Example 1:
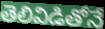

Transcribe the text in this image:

తెలివిడితోనే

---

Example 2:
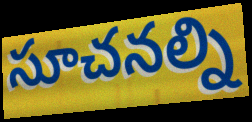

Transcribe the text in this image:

సూచనల్ని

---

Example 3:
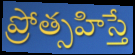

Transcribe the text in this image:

ప్రోత్సహిస్తే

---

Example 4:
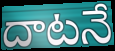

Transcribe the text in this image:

దాటనే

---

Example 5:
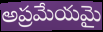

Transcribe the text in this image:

అప్రమేయమై